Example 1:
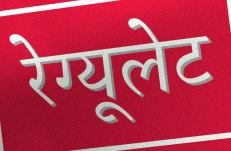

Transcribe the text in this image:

रेग्यूलेट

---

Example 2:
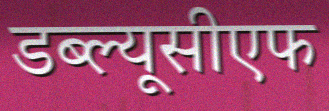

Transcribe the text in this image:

डब्ल्यूसीएफ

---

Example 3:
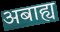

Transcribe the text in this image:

अबाह्य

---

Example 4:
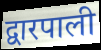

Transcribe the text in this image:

द्वारपाली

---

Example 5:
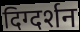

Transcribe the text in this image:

दिग्दर्शन